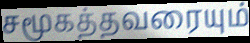
சமூகத்தவரையும்